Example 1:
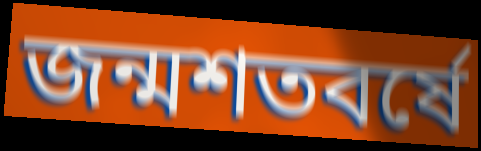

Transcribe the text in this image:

জন্মশতবর্ষে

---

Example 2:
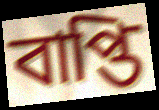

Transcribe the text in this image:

বাপ্তি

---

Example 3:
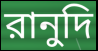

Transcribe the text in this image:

রানুদি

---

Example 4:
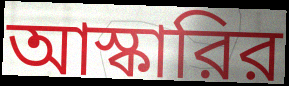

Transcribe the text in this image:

আস্কারির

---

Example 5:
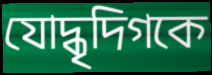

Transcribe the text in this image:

যোদ্ধৃদিগকে